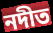
নদীত